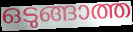
ഒടുങ്ങാത്ത